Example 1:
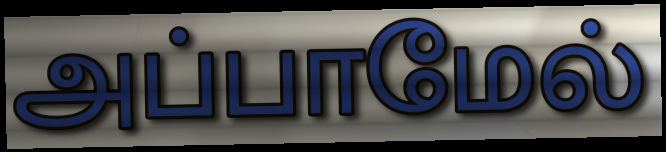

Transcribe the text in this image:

அப்பாமேல்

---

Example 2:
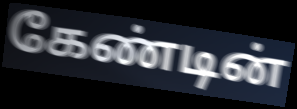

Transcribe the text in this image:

கேண்டின்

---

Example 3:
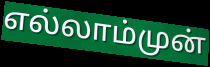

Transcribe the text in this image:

எல்லாம்முன்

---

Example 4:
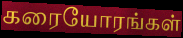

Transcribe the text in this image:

கரையோரங்கள்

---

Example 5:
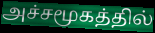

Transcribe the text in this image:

அச்சமூகத்தில்